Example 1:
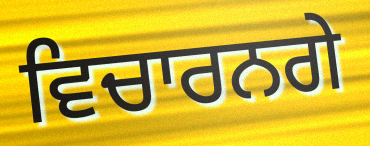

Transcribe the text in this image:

ਵਿਚਾਰਨਗੇ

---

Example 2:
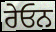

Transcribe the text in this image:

ਰੇਓਨ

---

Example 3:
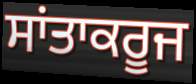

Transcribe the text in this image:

ਸਾਂਤਾਕਰੂਜ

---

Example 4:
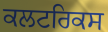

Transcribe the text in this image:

ਕਲਟਰਿਕਸ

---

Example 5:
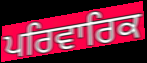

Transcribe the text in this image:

ਪਰਿਵਾਰਿਕ